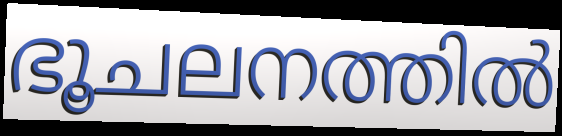
ഭൂചലനത്തിൽ